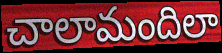
చాలామందిలా